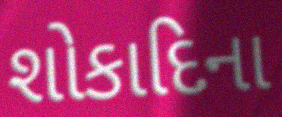
શોકાદિના